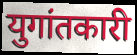
युगांतकारी